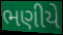
ભણીયે